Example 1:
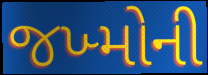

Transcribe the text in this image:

જખ્મોની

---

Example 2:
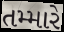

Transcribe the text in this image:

તમ્મારે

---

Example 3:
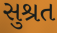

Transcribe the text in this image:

સુશ્રત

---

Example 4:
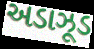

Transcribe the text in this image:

અડાઝૂડ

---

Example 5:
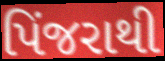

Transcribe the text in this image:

પિંજરાથી